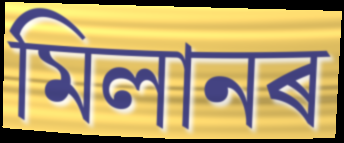
মিলানৰ